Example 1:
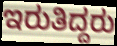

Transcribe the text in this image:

ಇರುತಿದ್ದರು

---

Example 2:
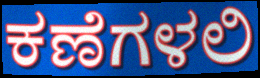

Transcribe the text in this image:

ಕಣೆಗಳಲಿ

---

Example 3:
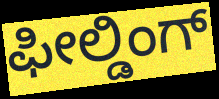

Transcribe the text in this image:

ಫೀಲ್ಡಿಂಗ್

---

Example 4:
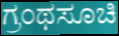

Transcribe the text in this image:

ಗ್ರಂಥಸೂಚಿ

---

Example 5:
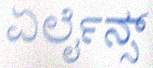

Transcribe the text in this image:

ಏರ್ಲೈನ್ಸ್